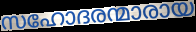
സഹോദരന്മാരായ